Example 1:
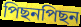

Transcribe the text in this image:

পিছনপিছন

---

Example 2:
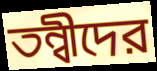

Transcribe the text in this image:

তন্বীদের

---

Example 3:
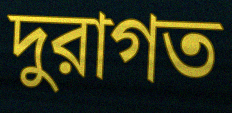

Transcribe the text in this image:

দুরাগত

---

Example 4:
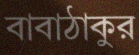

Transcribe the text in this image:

বাবাঠাকুর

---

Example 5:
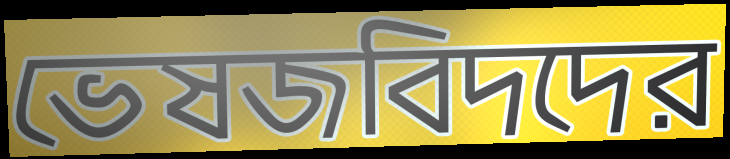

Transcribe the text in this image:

ভেষজবিদদের